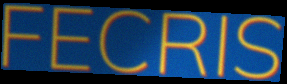
FECRIS